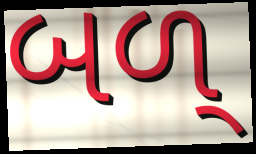
બળ્